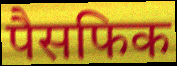
पैसफिक